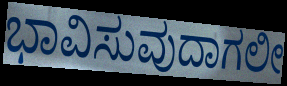
ಭಾವಿಸುವುದಾಗಲೀ